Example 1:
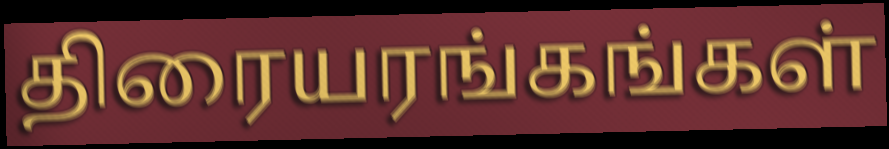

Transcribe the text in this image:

திரையரங்கங்கள்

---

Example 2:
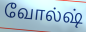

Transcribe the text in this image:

வோல்ஷ்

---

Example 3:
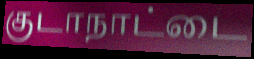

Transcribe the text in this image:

குடாநாட்டை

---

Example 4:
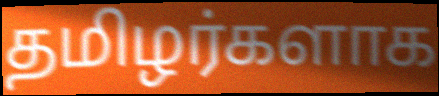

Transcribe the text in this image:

தமிழர்களாக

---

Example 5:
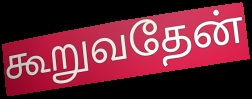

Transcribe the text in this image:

கூறுவதேன்